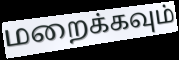
மறைக்கவும்